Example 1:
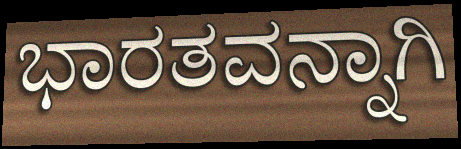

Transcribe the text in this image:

ಭಾರತವನ್ನಾಗಿ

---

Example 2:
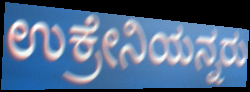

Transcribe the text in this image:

ಉಕ್ರೇನಿಯನ್ನರು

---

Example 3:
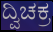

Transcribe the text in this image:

ದ್ವಿಚಕ್ರ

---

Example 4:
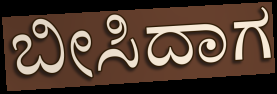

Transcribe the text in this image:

ಬೀಸಿದಾಗ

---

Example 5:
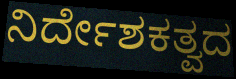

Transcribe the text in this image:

ನಿರ್ದೇಶಕತ್ವದ